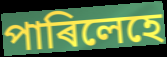
পাৰিলেহে